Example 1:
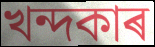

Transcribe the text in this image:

খন্দকাৰ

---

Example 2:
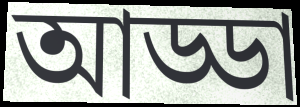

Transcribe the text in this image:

আড্ডা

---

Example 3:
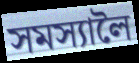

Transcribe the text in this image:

সমস্যালৈ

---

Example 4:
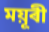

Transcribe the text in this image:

ময়ূৰী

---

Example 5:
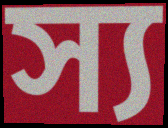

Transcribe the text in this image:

স্য